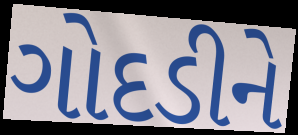
ગોદડીને